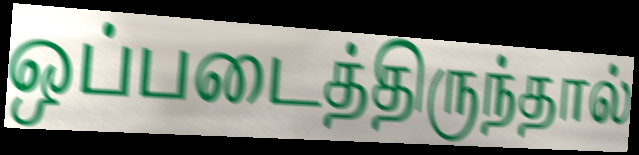
ஒப்படைத்திருந்தால்